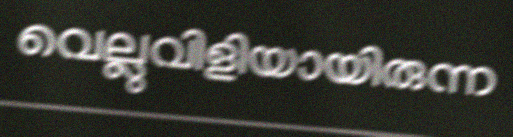
വെല്ലുവിളിയായിരുന്ന